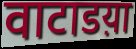
वाटाडय़ा